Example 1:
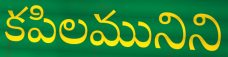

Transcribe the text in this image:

కపిలమునిని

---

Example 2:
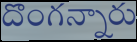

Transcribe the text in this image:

దొంగన్నారు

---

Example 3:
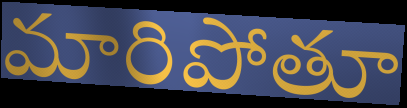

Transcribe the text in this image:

మారిపోతూ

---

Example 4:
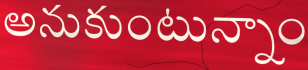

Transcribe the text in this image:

అనుకుంటున్నాం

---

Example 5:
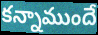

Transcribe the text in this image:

కన్నాముందే